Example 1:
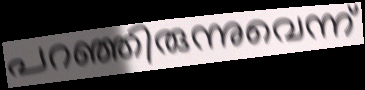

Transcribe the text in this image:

പറഞ്ഞിരുന്നുവെന്ന്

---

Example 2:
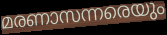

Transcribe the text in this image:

മരണാസന്നരെയും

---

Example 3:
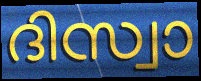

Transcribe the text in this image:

ദിസ്വാ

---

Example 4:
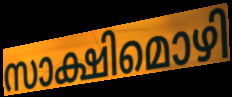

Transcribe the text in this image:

സാക്ഷിമൊഴി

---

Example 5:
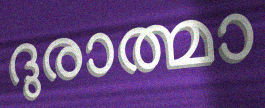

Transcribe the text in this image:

ദുരാത്മാ